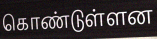
கொண்டுள்ளன